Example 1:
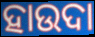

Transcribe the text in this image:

ହାଉଦା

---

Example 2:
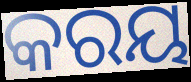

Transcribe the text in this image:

କରୟ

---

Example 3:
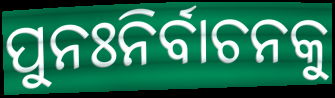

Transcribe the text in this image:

ପୁନଃନିର୍ବାଚନକୁ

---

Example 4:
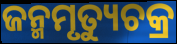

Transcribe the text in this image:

ଜନ୍ମମୃତ୍ୟୁଚକ୍ର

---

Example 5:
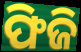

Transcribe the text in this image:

ଫିଜି